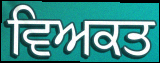
ਵਿਅਕਤ